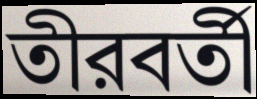
তীরবর্তী